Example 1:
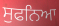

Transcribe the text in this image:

ਸੁਫਨਿਆ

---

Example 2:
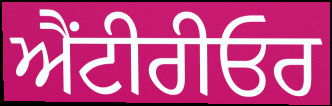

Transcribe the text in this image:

ਐਂਟੀਰੀਓਰ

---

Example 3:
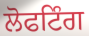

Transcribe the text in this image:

ਲੋਫਟਿੰਗ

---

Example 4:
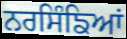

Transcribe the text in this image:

ਨਰਸਿੰਙਿਆਂ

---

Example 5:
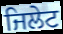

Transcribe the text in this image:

ਜਿਲੇਟ